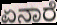
ಏನಾರೆ